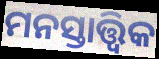
ମନସ୍ତାତ୍ତ୍ଵିକ